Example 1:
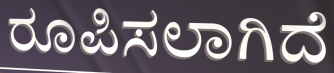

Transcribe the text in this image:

ರೂಪಿಸಲಾಗಿದೆ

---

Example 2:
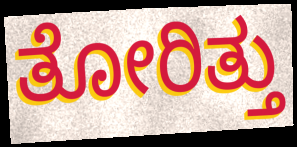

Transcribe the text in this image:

ತೋರಿತ್ತು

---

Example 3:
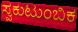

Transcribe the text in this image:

ಸ್ವಕುಟುಂಬಿಕ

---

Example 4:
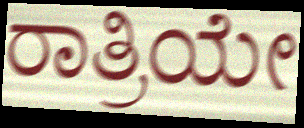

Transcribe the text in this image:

ರಾತ್ರಿಯೇ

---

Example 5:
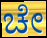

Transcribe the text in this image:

ಚೇ